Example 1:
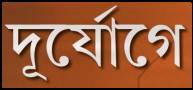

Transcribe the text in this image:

দূর্যোগে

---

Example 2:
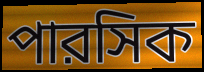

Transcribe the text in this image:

পারসিক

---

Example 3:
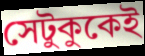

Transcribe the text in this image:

সেটুকুকেই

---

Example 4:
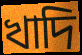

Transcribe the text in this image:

খাদি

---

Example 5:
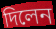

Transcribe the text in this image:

দিলেন